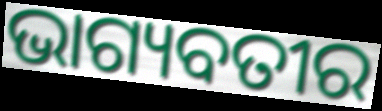
ଭାଗ୍ୟବତୀର